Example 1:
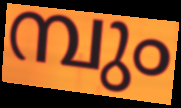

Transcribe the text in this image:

മ്പും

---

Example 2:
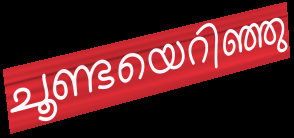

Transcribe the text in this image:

ചൂണ്ടയെറിഞ്ഞു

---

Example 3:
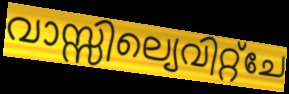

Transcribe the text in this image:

വാസ്സില്യെവിറ്റ്ചേ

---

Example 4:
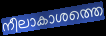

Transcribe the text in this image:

നീലാകാശത്തെ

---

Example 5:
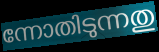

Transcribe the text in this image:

ന്നോതിടുന്നതു